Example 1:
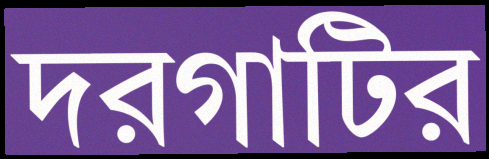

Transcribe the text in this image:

দরগাটির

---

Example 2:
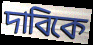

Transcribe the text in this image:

দাবিকে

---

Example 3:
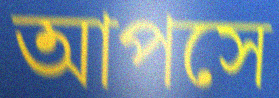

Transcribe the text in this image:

আপসে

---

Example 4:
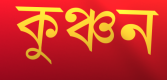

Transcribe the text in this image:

কুঞ্চন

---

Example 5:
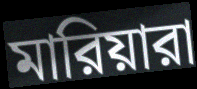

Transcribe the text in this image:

মারিয়ারা